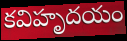
కవిహృదయం